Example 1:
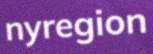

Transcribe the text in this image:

nyregion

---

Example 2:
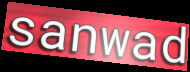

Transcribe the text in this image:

sanwad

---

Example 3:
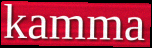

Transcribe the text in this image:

kamma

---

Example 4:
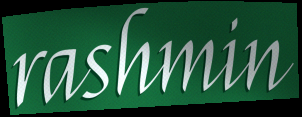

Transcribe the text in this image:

rashmin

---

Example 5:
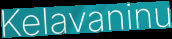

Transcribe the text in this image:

Kelavaninu